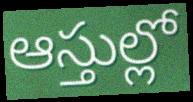
ఆస్తుల్లో